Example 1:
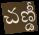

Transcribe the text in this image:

చణ్డీ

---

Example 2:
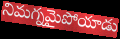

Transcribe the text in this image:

నిమగ్నమైపోయాడు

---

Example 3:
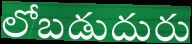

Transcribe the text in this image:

లోబడుదురు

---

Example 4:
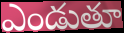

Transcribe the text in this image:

ఎండుతూ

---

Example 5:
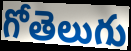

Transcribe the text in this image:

గోతెలుగు